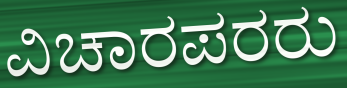
ವಿಚಾರಪರರು